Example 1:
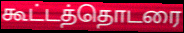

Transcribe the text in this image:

கூட்டத்தொடரை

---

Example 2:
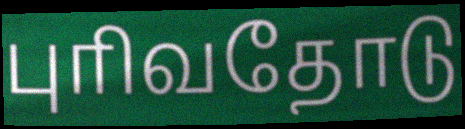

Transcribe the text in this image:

புரிவதோடு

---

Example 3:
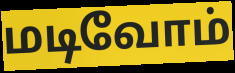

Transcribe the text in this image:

மடிவோம்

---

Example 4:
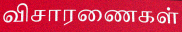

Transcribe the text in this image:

விசாரணைகள்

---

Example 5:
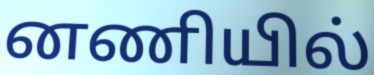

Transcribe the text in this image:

னணியில்